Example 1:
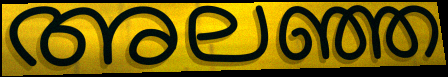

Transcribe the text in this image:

അലഞ്ഞ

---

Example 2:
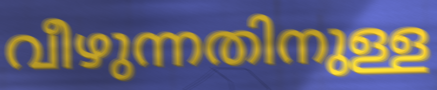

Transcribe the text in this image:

വീഴുന്നതിനുള്ള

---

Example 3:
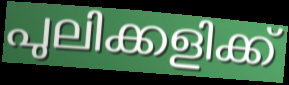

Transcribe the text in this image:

പുലിക്കളിക്ക്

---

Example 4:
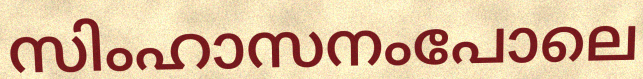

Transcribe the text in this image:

സിംഹാസനംപോലെ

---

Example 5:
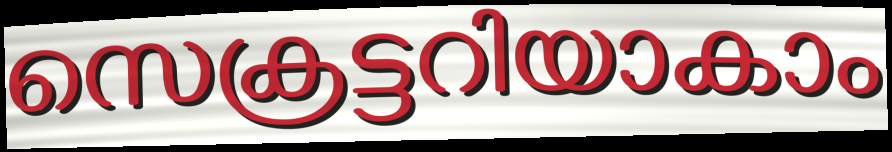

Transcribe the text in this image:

സെക്രട്ടറിയാകാം